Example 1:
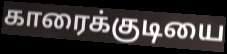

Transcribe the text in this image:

காரைக்குடியை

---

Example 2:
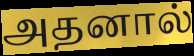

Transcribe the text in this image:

அதனால்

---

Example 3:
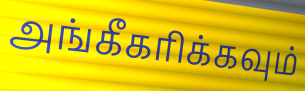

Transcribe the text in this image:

அங்கீகரிக்கவும்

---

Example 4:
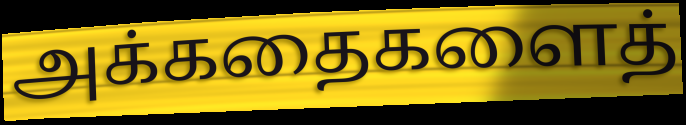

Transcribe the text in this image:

அக்கதைகளைத்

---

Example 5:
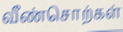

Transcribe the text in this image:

வீண்சொற்கள்